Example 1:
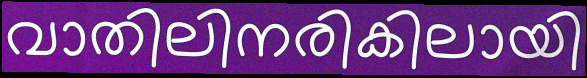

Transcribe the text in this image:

വാതിലിനരികിലായി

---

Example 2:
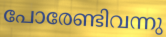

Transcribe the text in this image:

പോരേണ്ടിവന്നു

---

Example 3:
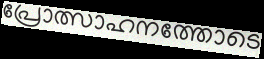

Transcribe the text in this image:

പ്രോത്സാഹനത്തോടെ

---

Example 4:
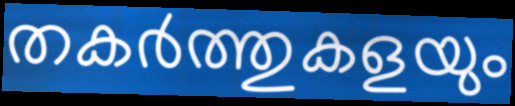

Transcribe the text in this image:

തകർത്തുകളയും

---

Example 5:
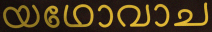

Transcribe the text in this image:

യഥോവാച